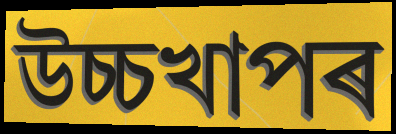
উচ্চখাপৰ